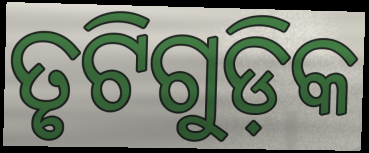
ତୃଟିଗୁଡ଼ିକ